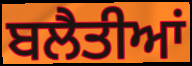
ਬਲੈਤੀਆਂ